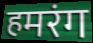
हमरंग